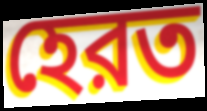
হেরত